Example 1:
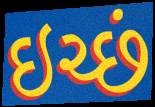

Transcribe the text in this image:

ઇચ્છં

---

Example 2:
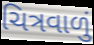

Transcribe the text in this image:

ચિત્રવાળું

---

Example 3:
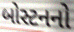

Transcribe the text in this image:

બોસ્ટનનો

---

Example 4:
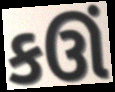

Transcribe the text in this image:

કઊં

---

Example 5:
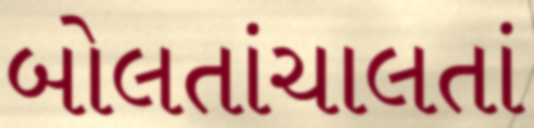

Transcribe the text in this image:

બોલતાંચાલતાં